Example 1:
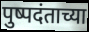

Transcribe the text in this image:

पुष्पदंताच्या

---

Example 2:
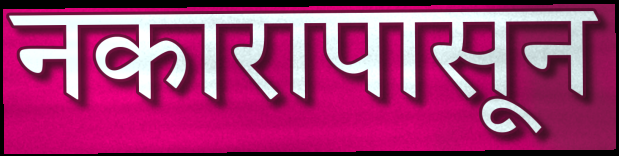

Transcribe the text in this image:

नकारापासून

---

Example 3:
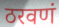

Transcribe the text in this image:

ठरवणं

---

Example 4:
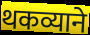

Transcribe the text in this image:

थकव्याने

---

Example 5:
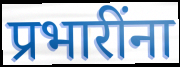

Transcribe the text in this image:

प्रभारींना